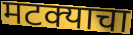
मटक्याचा